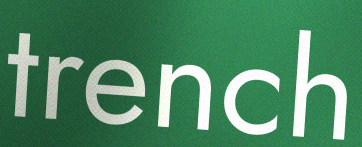
trench